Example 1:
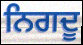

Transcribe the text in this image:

ਨਿਗਦੂ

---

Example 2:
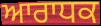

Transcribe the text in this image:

ਆਰਾਧਕ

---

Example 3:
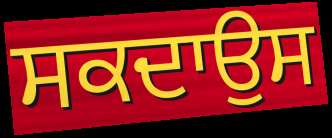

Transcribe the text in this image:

ਸਕਦਾਉਸ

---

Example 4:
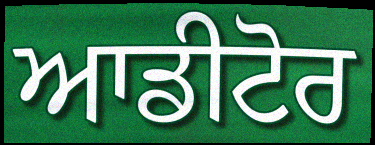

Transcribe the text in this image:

ਆਡੀਟੋਰ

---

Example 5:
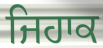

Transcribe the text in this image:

ਜਿਹਾਕ